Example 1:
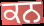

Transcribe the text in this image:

ਕਨ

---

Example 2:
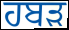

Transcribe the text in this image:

ਹਬੜ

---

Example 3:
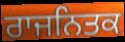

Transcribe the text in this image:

ਰਾਜਨਿਤਕ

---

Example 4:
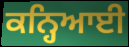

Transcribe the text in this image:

ਕਨ੍ਹਿਆਈ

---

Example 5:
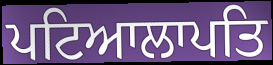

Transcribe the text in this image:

ਪਟਿਆਲਾਪਤਿ